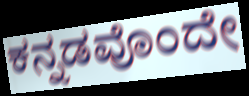
ಕನ್ನಡವೊಂದೇ